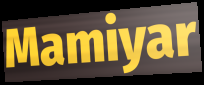
Mamiyar